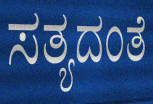
ಸತ್ಯದಂತೆ